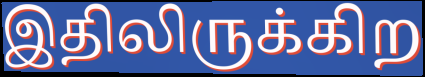
இதிலிருக்கிற